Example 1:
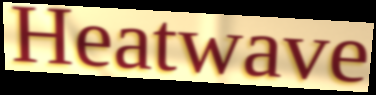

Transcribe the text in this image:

Heatwave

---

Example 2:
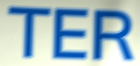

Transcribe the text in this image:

TER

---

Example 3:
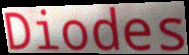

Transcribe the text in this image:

Diodes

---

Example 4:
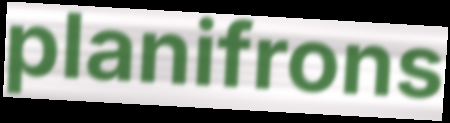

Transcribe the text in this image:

planifrons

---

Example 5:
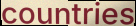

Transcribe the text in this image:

countries